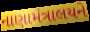
નાણામંત્રાલયને